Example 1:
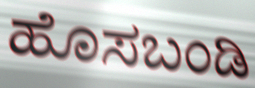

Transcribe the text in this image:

ಹೊಸಬಂಡಿ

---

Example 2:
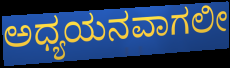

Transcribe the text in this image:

ಅಧ್ಯಯನವಾಗಲೀ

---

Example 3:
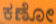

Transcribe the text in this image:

ಕಣೋ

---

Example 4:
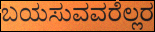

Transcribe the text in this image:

ಬಯಸುವವರೆಲ್ಲರ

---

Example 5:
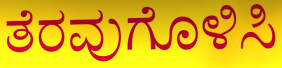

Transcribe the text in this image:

ತೆರವುಗೊಳಿಸಿ